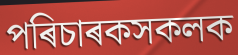
পৰিচাৰকসকলক